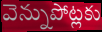
వెన్నుపోట్లకు